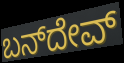
ಬನ್‌ದೇವ್